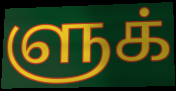
ளுக்